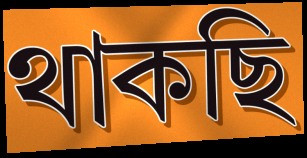
থাকছি